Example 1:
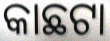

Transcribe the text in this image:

କାଛଟା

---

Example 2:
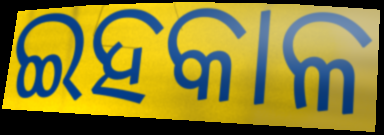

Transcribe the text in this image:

ଇହକାଳ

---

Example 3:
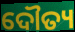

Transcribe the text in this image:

ଦୌତ୍ୟ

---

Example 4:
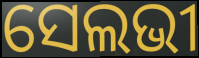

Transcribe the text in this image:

ସେଲଭୀ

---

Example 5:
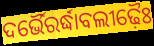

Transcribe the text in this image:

ଦର୍ଭୈରର୍ଦ୍ଧାବଲୀଢ଼ୈଃ